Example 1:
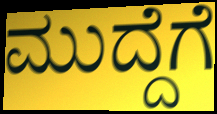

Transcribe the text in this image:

ಮುದ್ದೆಗೆ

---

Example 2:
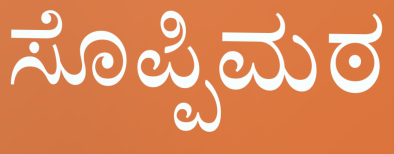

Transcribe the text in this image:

ಸೊಪ್ಪಿಮಠ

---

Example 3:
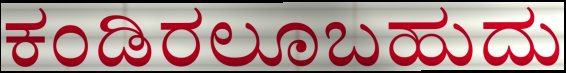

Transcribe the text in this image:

ಕಂಡಿರಲೂಬಹುದು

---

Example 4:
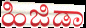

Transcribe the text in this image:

ಹಿಜಿಡಾ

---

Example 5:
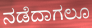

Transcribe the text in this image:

ನಡೆದಾಗಲೂ